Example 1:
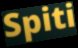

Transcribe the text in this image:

Spiti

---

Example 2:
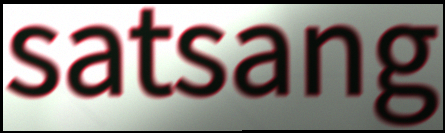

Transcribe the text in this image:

satsang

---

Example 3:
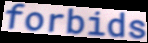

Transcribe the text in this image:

forbids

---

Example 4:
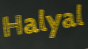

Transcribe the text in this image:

Halyal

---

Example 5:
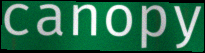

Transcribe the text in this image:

canopy